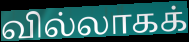
வில்லாகக்